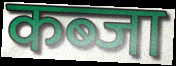
कब्‍जा